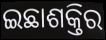
ଇଛାଶକ୍ତିର